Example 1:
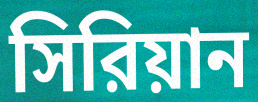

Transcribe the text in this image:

সিরিয়ান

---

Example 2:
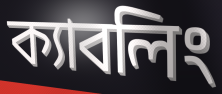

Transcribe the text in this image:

ক্যাবলিং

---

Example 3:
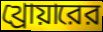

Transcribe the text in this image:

থ্রোয়ারের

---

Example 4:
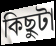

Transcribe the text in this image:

কিছুটা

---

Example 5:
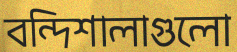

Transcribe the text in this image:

বন্দিশালাগুলো